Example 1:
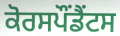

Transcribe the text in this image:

ਕੋਰਸਪੌਂਡੈਂਟਸ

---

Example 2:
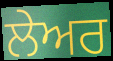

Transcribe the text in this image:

ਲੇਅਰ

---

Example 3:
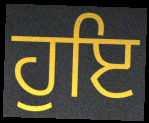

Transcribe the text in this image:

ਹੁਇ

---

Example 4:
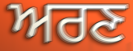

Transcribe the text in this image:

ਅਰਣ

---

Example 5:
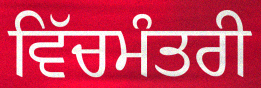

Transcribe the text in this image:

ਵਿੱਚਮੰਤਰੀ